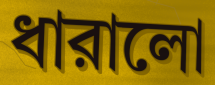
ধারালো